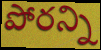
పోరన్ని